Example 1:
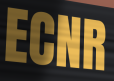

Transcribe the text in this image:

ECNR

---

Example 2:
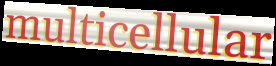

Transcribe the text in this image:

multicellular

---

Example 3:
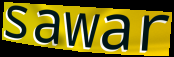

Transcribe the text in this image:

sawar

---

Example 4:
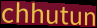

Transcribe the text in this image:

chhutun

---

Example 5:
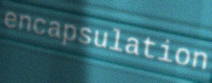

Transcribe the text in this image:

encapsulation